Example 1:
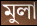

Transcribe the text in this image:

মুলা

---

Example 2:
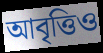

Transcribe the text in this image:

আবৃত্তিও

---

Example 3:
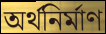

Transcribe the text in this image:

অর্থনির্মাণ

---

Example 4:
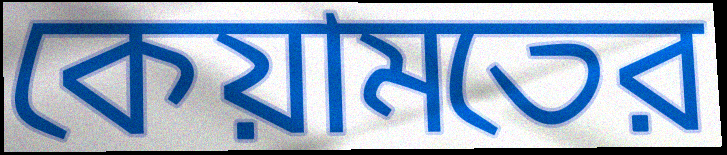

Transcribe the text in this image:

কেয়ামতের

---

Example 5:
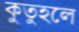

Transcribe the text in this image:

কুতুহলে